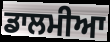
ਡਾਲਮੀਆ